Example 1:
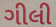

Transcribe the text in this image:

ગીલી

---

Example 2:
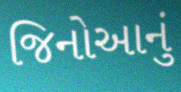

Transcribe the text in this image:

જિનોઆનું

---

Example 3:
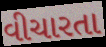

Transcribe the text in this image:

વીચારતા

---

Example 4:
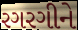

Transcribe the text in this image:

રગરગીને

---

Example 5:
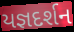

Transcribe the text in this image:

યજ્ઞદર્શન